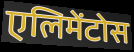
एलिमेंटोस